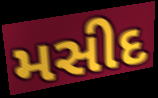
મસીદ